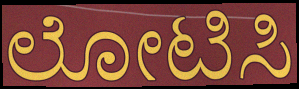
ಲೋಟಿಸಿ